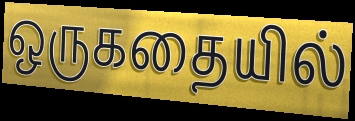
ஒருகதையில்